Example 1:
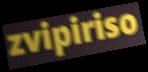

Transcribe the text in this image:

zvipiriso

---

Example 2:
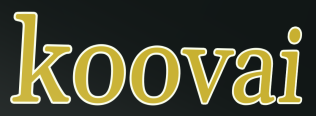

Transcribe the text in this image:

koovai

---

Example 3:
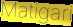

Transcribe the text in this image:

Matigari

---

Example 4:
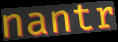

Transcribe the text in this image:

nantr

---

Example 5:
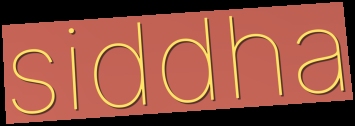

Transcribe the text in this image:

siddha